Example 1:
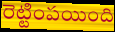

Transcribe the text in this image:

రెట్టింపయింది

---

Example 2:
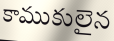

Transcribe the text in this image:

కాముకులైన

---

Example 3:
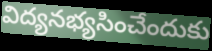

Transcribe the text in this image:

విద్యనభ్యసించేందుకు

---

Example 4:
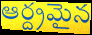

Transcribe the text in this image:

ఆర్ద్రమైన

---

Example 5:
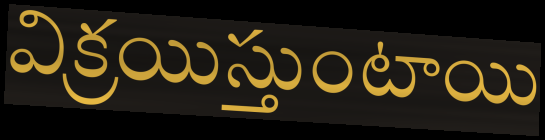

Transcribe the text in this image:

విక్రయిస్తుంటాయి